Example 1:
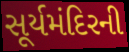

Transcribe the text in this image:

સૂર્યમંદિરની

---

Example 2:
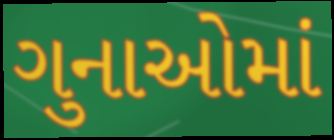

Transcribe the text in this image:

ગુનાઓમાં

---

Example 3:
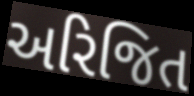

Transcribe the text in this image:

અરિજિત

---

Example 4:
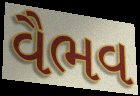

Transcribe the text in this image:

વૈભવ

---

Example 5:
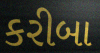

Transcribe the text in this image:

કરીબા